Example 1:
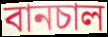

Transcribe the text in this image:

বানচাল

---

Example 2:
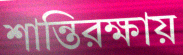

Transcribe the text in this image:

শান্তিরক্ষায়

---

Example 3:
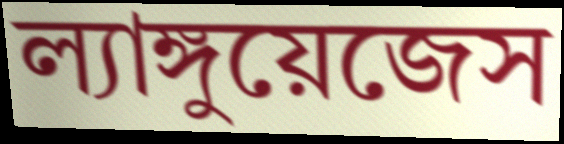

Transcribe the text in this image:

ল্যাঙ্গুয়েজেস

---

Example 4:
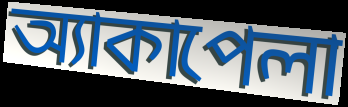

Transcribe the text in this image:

অ্যাকাপেলা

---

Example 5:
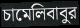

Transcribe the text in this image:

চামেলিবাবুর